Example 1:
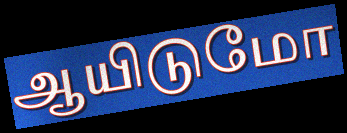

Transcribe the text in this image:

ஆயிடுமோ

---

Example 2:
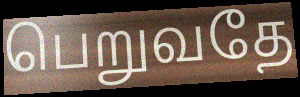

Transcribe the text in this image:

பெறுவதே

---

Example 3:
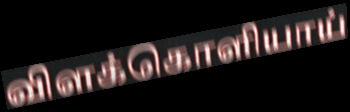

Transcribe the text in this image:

விளக்கொளியாய்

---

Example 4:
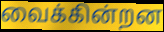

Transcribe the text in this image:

வைக்கின்றன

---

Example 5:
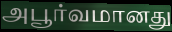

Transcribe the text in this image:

அபூர்வமானது